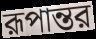
রূপান্তর